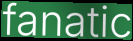
fanatic